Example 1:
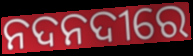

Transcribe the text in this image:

ନଦନଦୀରେ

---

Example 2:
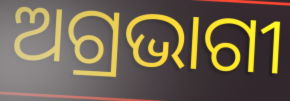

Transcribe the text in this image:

ଅଗ୍ରଭାଗୀ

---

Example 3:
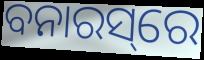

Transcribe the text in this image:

ବନାରସ୍‌ରେ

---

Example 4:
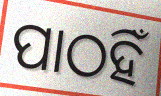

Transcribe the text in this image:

ପାଠହିଁ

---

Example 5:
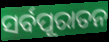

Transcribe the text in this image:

ସର୍ବପୂରାତନ